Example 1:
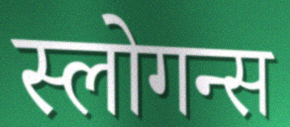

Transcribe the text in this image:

स्लोगन्स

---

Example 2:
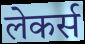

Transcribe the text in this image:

लेकर्स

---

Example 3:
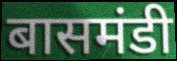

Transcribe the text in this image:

बासमंडी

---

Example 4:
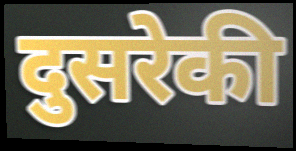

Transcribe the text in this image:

दुसरेकी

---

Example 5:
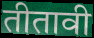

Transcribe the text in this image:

तीतावी